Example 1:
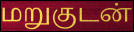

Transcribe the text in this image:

மறுகுடன்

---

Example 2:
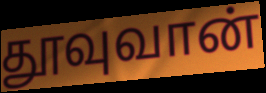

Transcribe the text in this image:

தூவுவான்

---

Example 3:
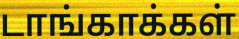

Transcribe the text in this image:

டாங்காக்கள்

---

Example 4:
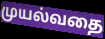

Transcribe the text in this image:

முயல்வதை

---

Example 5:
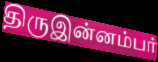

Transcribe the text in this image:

திருஇன்னம்பர்